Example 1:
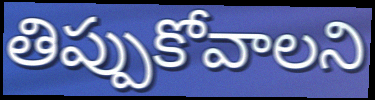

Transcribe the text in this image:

తిప్పుకోవాలని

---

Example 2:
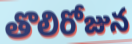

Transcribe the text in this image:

తొలిరోజున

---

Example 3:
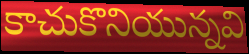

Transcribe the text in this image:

కాచుకొనియున్నవి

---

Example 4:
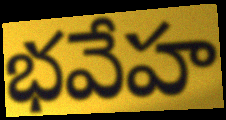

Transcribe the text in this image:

భవేహ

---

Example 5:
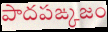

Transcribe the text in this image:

పాదపఙ్కజం